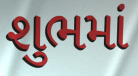
શુભમાં